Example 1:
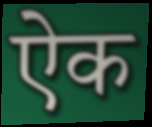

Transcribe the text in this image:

ऐक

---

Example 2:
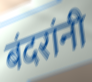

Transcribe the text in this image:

बंदरांनी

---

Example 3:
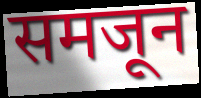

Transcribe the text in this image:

समजून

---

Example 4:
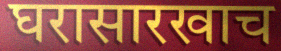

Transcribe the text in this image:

घरासारखाच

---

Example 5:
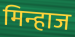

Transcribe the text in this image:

मिन्हाज